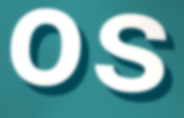
os